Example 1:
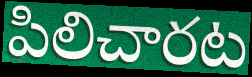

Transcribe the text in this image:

పిలిచారట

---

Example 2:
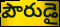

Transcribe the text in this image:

పౌరుడై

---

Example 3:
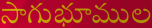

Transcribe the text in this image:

సాగుభూముల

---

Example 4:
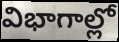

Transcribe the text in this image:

విభాగాల్లో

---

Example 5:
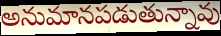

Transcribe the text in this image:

అనుమానపడుతున్నావు